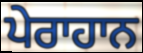
ਪੇਰਾਹਾਨ